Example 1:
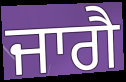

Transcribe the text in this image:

ਜਾਗੈ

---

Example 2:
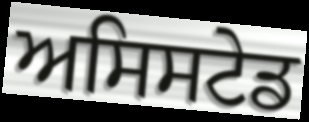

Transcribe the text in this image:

ਅਸਿਸਟੇਡ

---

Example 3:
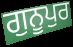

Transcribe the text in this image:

ਗੁਨੂਪੁਰ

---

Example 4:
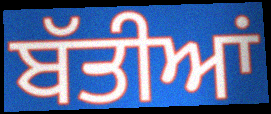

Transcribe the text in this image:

ਬੱਤੀਆਂ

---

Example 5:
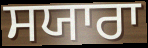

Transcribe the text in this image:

ਸਯਾਰਾ